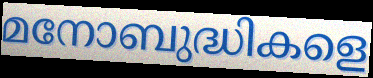
മനോബുദ്ധികളെ